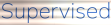
Supervised